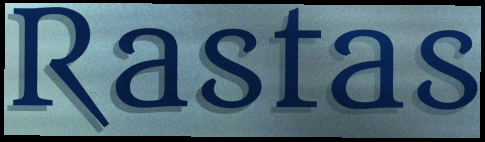
Rastas